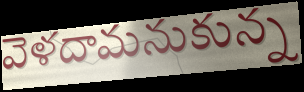
వెళదామనుకున్న